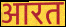
आरत